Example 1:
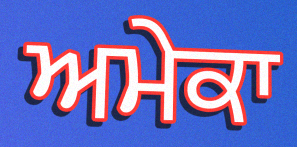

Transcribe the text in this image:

ਅਮੇਕਾ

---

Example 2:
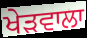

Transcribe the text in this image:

ਖੇੜਵਾਲਾ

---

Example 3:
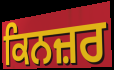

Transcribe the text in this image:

ਕਿਨਜ਼ਰ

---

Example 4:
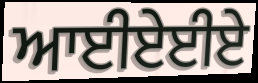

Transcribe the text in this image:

ਆਈਏਈਏ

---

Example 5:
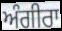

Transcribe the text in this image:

ਅੰਗੀਰਾ